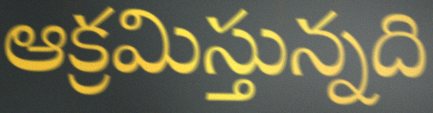
ఆక్రమిస్తున్నది